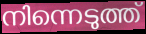
നിന്നെടുത്ത്